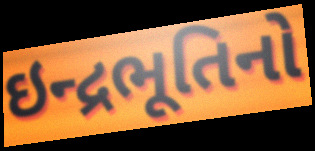
ઇન્દ્રભૂતિનો